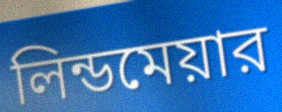
লিন্ডমেয়ার